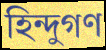
হিন্দুগণ